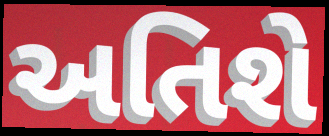
અતિશે